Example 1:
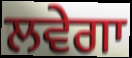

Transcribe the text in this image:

ਲਵੇਗਾ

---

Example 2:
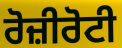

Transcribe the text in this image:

ਰੋਜ਼ੀਰੋਟੀ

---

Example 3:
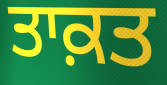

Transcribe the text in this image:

ਤਾਕ਼ਤ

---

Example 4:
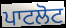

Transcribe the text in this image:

ਪਾਟਲੋਟ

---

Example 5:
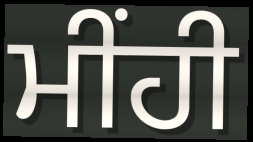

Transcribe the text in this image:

ਮੀਂਹੀ